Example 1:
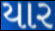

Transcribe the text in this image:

યાર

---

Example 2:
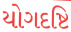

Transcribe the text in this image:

યોગદષ્ટિ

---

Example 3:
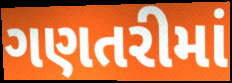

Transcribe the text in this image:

ગણતરીમાં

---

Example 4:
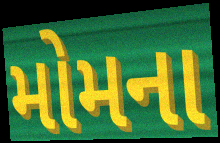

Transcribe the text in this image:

મોમના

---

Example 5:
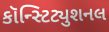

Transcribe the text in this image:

કૉન્સ્ટિટ્યુશનલ